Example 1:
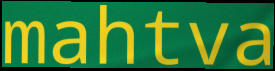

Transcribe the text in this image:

mahtva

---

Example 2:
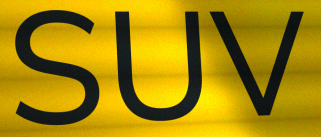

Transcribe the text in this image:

SUV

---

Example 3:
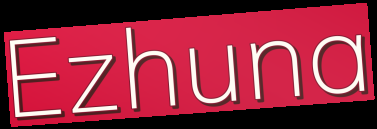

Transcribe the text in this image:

Ezhuna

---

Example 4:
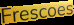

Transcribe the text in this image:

Frescoes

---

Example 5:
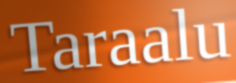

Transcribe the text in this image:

Taraalu